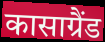
कासाग्रैंड